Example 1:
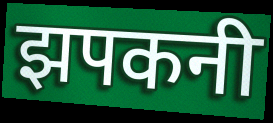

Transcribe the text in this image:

झपकनी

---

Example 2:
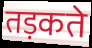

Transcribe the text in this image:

तड़कते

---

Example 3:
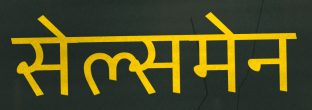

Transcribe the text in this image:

सेल्समेन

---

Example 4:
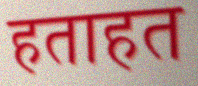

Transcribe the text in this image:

हताहत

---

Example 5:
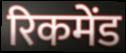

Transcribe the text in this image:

रिकमेंड